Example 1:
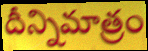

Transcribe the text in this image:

దీన్నిమాత్రం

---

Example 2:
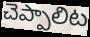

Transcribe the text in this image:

చెప్పాలిట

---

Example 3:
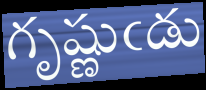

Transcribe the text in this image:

గృష్ణుఁడు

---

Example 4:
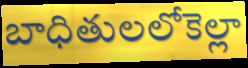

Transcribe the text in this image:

బాధితులలోకెల్లా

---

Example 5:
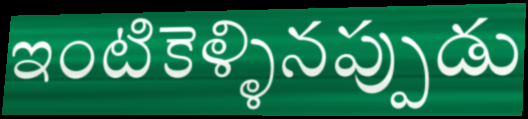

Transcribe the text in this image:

ఇంటికెళ్ళినప్పుడు